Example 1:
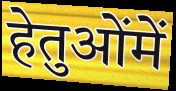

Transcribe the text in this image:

हेतुओंमें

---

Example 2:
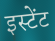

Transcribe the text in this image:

इस्टेंट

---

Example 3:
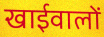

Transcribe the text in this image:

खाईवालों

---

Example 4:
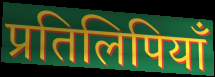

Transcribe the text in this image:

प्रतिलिपियाँ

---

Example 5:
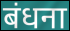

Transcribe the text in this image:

बंधना